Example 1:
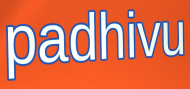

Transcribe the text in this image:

padhivu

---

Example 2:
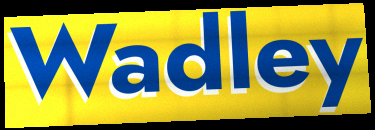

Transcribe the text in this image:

Wadley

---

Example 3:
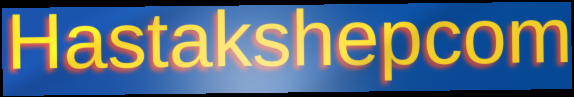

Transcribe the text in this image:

Hastakshepcom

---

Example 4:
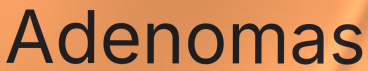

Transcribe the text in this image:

Adenomas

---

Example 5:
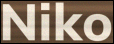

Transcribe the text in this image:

Niko